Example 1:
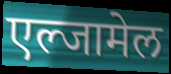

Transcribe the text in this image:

एल्जामेल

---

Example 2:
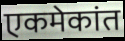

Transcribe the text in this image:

एकमेकांत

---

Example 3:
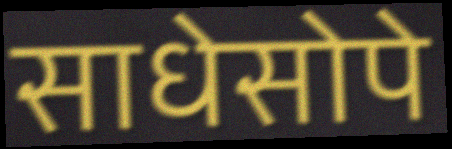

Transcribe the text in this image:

साधेसोपे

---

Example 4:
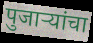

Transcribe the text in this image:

पुजाऱ्यांचा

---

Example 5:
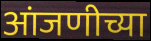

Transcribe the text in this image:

आंजणीच्या